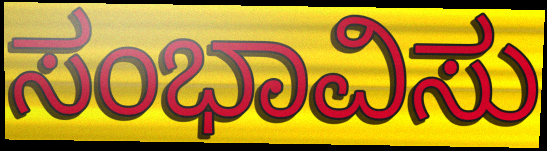
ಸಂಭಾವಿಸು